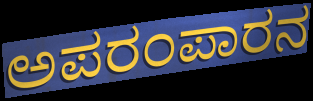
ಅಪರಂಪಾರನ